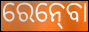
ରେନ୍‍ବୋ